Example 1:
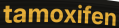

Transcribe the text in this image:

tamoxifen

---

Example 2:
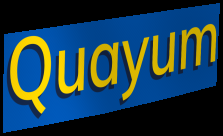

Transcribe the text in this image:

Quayum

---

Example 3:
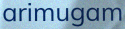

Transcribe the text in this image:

arimugam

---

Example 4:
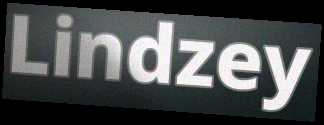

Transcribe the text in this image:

Lindzey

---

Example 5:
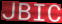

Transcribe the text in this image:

JBIC